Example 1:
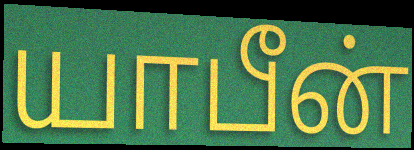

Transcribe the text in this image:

யாபீன்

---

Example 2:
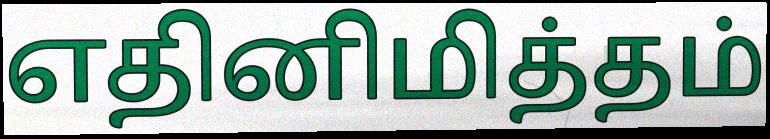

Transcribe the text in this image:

எதினிமித்தம்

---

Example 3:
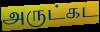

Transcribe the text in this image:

அருட்கட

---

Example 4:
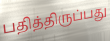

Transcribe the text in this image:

பதித்திருப்பது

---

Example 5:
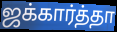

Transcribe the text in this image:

ஜக்கார்த்தா